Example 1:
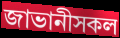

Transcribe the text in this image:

জাভানীসকল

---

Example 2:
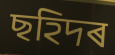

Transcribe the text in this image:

ছহিদৰ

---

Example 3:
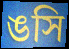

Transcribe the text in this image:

ঙসি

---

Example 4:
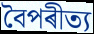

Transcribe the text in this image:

বৈপৰীত্য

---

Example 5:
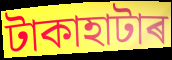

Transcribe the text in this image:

টাকাহাটাৰ